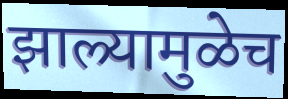
झाल्यामुळेच